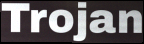
Trojan